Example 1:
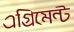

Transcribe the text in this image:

এগ্রিমেন্ট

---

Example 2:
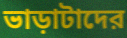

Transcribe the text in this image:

ভাড়াটাদের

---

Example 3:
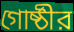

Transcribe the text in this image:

গোষ্ঠীর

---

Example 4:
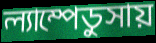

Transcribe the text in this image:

ল্যাম্পেডুসায়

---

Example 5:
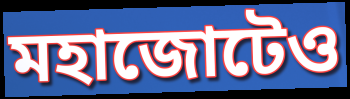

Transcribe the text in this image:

মহাজোটেও